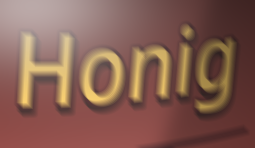
Honig